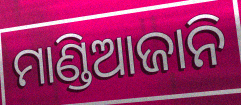
ମାଣ୍ଡିଆଜାନି